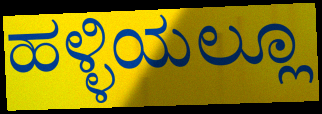
ಹಳ್ಳಿಯಲ್ಲೂ